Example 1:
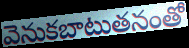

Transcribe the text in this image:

వెనుకబాటుతనంతో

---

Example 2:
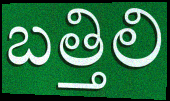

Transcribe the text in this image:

బత్తిలి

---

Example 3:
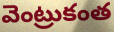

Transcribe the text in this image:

వెంట్రుకంత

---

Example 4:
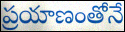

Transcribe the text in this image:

ప్రయాణంతోనే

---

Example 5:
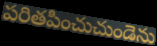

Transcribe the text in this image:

పరితపించుచుండెను